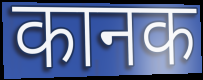
कानक